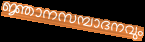
ജ്ഞാനസമ്പാദനവും